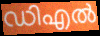
ഡിഎൽ